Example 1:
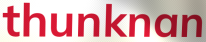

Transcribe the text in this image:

thunknan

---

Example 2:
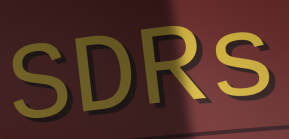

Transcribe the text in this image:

SDRs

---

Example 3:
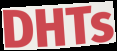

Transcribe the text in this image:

DHTs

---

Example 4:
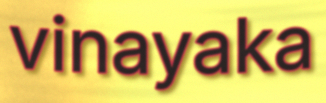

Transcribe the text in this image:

vinayaka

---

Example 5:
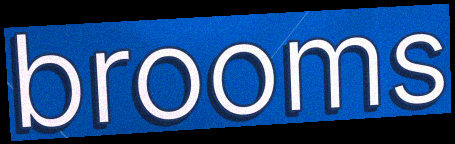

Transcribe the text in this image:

brooms